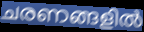
ചരണങ്ങളിൽ